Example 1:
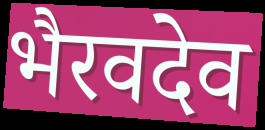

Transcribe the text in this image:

भैरवदेव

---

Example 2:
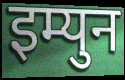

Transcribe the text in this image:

इम्‍युन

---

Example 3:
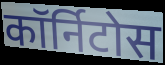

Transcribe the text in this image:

कॉर्निटोस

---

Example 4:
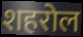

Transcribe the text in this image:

शहरोल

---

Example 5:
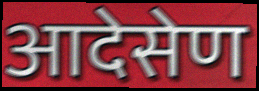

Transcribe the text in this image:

आदेसेण